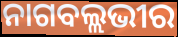
ନାଗବଲ୍ଲଭୀର